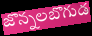
జొన్నలబొగుడ